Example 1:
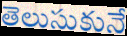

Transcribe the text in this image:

తెలుసుకునే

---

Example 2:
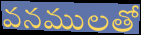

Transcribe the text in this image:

వనములతో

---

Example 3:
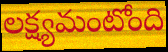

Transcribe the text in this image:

లక్ష్యమంటోంది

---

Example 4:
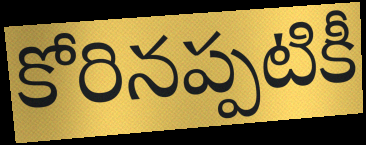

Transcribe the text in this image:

కోరినప్పటికీ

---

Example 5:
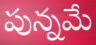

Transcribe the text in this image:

పున్నమే